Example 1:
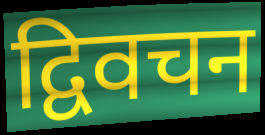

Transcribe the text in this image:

द्विवचन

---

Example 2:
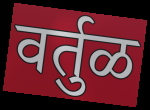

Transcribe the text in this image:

वर्तुळ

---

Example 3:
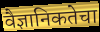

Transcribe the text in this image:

वैज्ञानिकतेचा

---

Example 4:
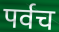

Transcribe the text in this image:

पर्वच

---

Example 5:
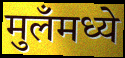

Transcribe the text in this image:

मुलँमध्ये